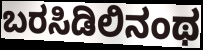
ಬರಸಿಡಿಲಿನಂಥ